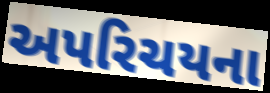
અપરિચયના